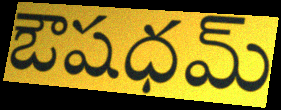
ఔషధమ్